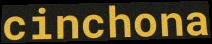
cinchona